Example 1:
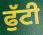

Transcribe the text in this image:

ਫੁੱਟੀ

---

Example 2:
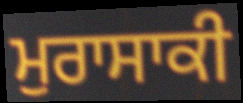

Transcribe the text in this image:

ਮੁਰਾਸਾਕੀ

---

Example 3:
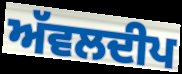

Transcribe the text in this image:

ਅੱਵਲਦੀਪ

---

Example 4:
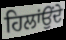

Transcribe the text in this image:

ਹਿਲਾਂਉਂਦੇ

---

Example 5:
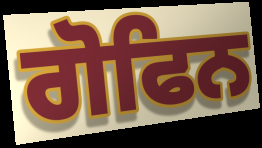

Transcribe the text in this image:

ਗੋਫਿਨ